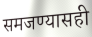
समजण्यासही